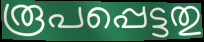
രൂപപ്പെട്ടതു